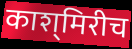
काश्मिरीच